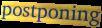
postponing